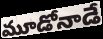
మూడోనాడే